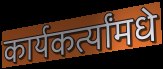
कार्यकर्त्यांमधे